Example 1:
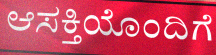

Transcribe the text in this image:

ಆಸಕ್ತಿಯೊಂದಿಗೆ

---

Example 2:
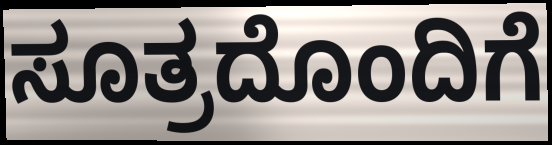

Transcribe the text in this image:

ಸೂತ್ರದೊಂದಿಗೆ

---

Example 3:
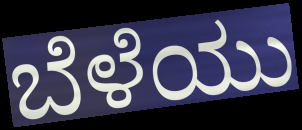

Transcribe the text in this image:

ಬೆಳೆಯು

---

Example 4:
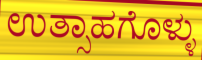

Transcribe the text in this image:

ಉತ್ಸಾಹಗೊಳ್ಳು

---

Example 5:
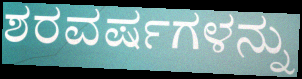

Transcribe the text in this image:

ಶರವರ್ಷಗಳನ್ನು